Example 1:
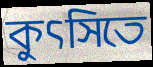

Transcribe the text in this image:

কুৎসিতে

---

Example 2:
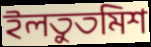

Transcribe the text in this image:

ইলতুতমিশ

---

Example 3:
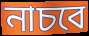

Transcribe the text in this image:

নাচবে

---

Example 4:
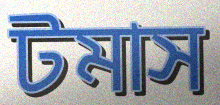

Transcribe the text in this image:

টমাস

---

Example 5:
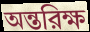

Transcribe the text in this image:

অন্তরিক্ষ